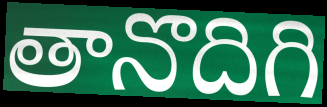
తానొదిగి